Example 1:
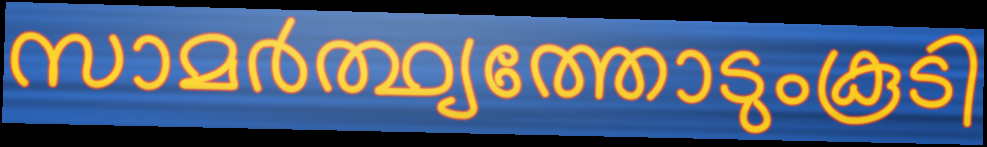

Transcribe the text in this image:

സാമർത്ഥ്യത്തോടുംകൂടി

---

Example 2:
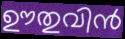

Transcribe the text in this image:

ഊതുവിൻ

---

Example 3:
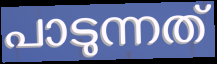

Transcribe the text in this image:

പാടുന്നത്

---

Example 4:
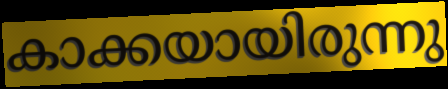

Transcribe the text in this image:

കാക്കയായിരുന്നു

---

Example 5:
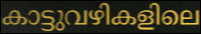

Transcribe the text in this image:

കാട്ടുവഴികളിലെ